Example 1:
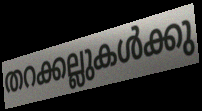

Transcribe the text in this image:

തറക്കല്ലുകൾക്കു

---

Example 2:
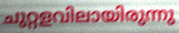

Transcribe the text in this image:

ചുറ്റളവിലായിരുന്നു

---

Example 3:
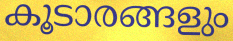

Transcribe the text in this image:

കൂടാരങ്ങളും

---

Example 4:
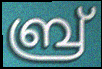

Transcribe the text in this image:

ബ്ര്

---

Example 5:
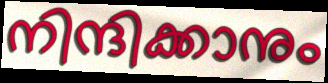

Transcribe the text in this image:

നിന്ദിക്കാനും